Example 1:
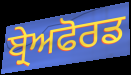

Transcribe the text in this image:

ਬ੍ਰੇਅਫੋਰਡ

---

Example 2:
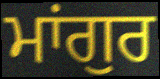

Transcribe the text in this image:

ਮਾਂਗੁਰ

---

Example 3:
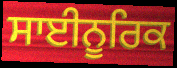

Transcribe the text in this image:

ਸਾਈਨੂਰਿਕ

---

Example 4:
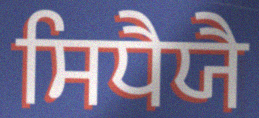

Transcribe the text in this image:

ਸਿਧੈਯੈ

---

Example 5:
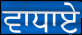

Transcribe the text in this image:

ਵਾਧਾਏ